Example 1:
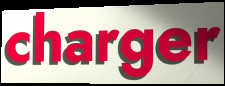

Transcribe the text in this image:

charger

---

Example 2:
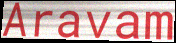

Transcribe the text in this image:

Aravam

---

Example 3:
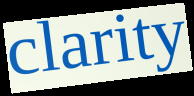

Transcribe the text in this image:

clarity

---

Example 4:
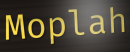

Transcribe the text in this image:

Moplah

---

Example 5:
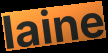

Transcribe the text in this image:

laine